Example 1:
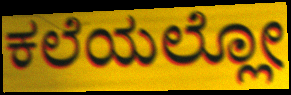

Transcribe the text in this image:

ಕಲೆಯಲ್ಲೋ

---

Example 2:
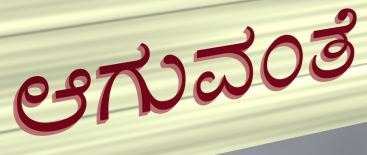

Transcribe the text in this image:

ಆಗುವಂತೆ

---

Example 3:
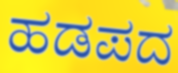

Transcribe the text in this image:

ಹಡಪದ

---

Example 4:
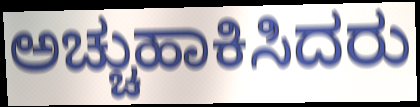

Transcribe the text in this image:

ಅಚ್ಚುಹಾಕಿಸಿದರು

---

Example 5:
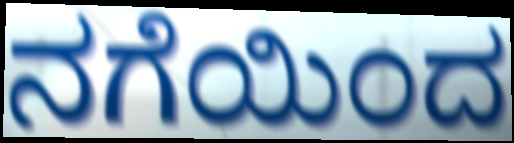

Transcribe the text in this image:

ನಗೆಯಿಂದ